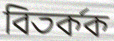
বিতৰ্কক